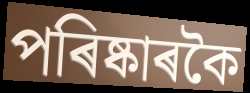
পৰিষ্কাৰকৈ